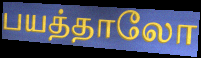
பயத்தாலோ